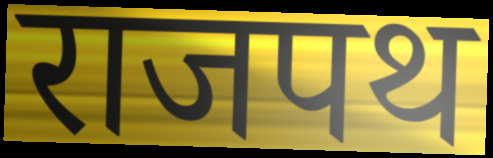
राजपथ